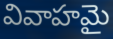
వివాహమై